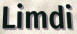
Limdi